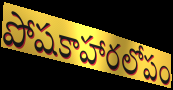
పోషకాహారలోపం